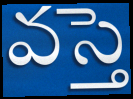
వస్తె